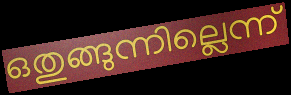
ഒതുങ്ങുന്നില്ലെന്ന്